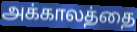
அக்காலத்தை